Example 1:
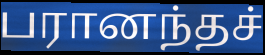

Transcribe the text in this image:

பரானந்தச்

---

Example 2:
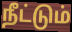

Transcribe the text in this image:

நீட்டும்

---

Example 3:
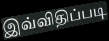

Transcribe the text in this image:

இவ்விதிப்படி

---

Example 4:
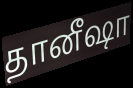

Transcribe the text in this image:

தானீஷா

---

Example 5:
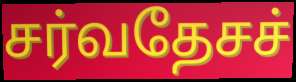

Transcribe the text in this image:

சர்வதேசச்